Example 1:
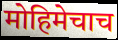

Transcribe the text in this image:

मोहिमेचाच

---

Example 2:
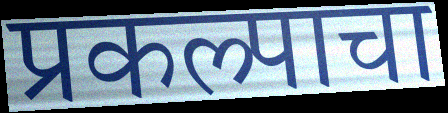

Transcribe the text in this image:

प्रकल्पाचा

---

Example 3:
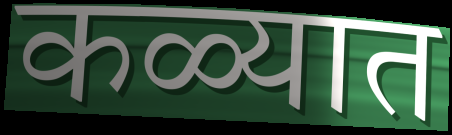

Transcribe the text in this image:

कळ्यात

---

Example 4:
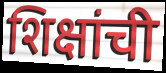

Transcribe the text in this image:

शिक्षांची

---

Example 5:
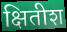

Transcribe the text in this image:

क्षितीश